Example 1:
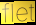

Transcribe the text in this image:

flet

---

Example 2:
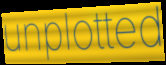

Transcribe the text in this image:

unplotted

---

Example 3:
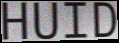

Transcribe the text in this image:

HUID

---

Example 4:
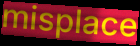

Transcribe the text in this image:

misplace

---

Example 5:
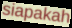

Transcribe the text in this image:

siapakah